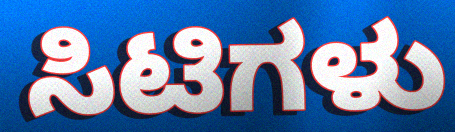
ಸಿಟಿಗಳು